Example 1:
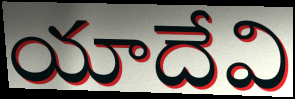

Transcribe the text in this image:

యాదేవి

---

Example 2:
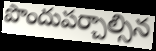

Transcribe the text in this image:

పొందుపర్చాల్సిన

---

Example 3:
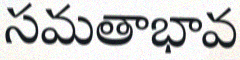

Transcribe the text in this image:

సమతాభావ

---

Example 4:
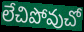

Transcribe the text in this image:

లేచిపోవుచో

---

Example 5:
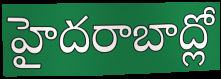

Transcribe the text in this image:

హైదరాబాద్లో